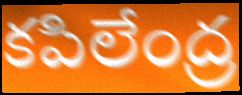
కపిలేంద్ర